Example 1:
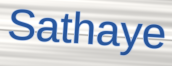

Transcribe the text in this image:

Sathaye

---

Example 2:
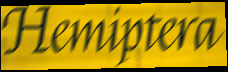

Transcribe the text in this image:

Hemiptera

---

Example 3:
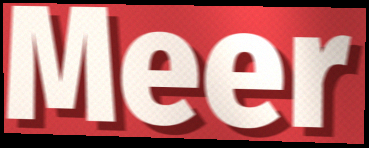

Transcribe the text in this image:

Meer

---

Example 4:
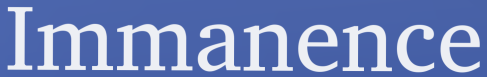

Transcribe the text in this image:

Immanence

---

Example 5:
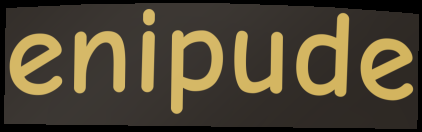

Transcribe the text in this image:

enipude